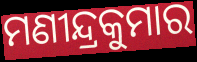
ମଣୀନ୍ଦ୍ରକୁମାର